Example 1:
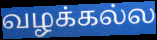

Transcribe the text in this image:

வழக்கல்ல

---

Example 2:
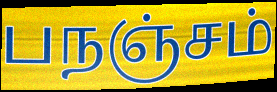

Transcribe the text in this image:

பநஞ்சம்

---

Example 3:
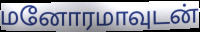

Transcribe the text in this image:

மனோரமாவுடன்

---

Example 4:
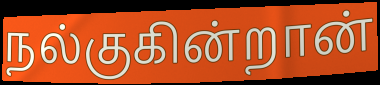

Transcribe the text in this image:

நல்குகின்றான்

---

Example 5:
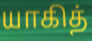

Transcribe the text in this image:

யாகித்